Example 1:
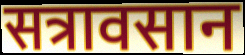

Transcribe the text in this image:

सत्रावसान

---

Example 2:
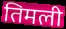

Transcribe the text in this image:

तिमली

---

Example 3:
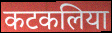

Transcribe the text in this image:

कटकलिया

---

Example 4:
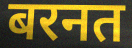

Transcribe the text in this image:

बरनत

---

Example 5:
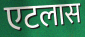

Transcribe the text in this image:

एटलास